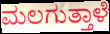
ಮಲಗುತ್ತಾಳೆ